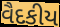
વૈદકીય